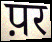
प़र